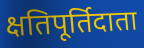
क्षतिपूर्तिदाता